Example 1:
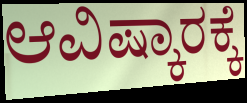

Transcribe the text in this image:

ಆವಿಷ್ಕಾರಕ್ಕೆ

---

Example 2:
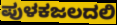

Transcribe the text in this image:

ಪುಳಕಜಲದಲಿ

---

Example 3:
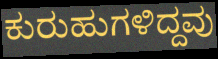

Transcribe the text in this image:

ಕುರುಹುಗಳಿದ್ದವು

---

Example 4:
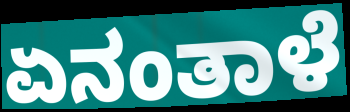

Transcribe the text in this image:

ಏನಂತಾಳೆ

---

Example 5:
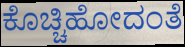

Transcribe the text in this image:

ಕೊಚ್ಚಿಹೋದಂತೆ